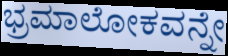
ಭ್ರಮಾಲೋಕವನ್ನೇ